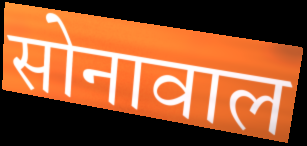
सोनावाल